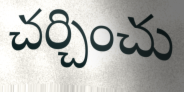
చర్చించు